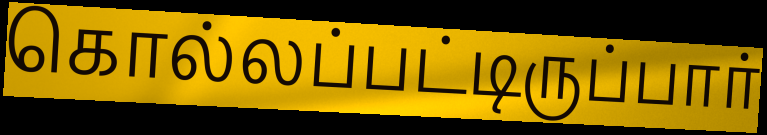
கொல்லப்பட்டிருப்பார்